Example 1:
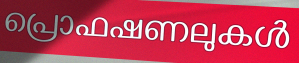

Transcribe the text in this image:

പ്രൊഫഷണലുകൾ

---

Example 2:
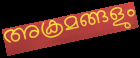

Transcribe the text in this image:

അക്രമങ്ങളും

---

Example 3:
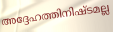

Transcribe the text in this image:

അദ്ദേഹത്തിനിഷ്ടമല്ല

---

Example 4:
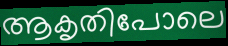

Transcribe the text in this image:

ആകൃതിപോലെ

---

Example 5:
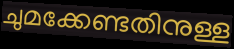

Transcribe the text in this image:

ചുമക്കേണ്ടതിനുള്ള